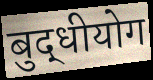
बुद्धीयोग